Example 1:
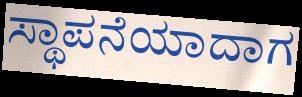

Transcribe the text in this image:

ಸ್ಥಾಪನೆಯಾದಾಗ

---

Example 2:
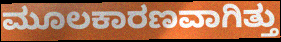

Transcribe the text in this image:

ಮೂಲಕಾರಣವಾಗಿತ್ತು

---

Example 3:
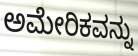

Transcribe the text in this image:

ಅಮೇರಿಕವನ್ನು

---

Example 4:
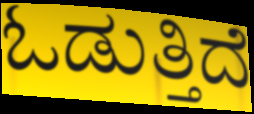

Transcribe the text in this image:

ಓಡುತ್ತಿದೆ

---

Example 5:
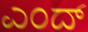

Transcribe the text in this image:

ಎಂದ್